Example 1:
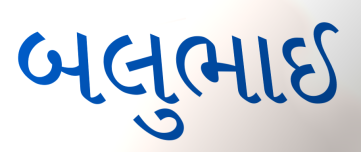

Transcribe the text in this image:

બલુભાઈ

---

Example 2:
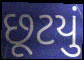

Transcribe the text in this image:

છૂટયું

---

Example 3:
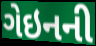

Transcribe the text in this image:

ગેઇનની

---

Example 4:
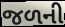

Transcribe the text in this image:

જળની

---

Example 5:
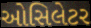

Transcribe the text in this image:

ઓસિલેટર